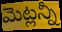
మెట్లన్నీ